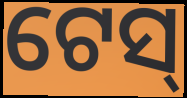
ଟେସ୍